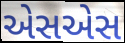
એસએસ